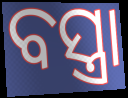
ବସ୍ତ୍ରା